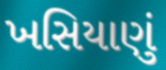
ખસિયાણું